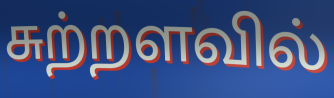
சுற்றளவில்